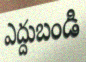
ఎద్దుబండి